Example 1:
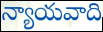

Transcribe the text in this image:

న్యాయవాది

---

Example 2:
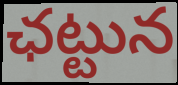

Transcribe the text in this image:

ఛట్టున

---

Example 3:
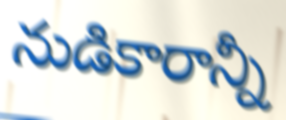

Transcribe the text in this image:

నుడికారాన్నీ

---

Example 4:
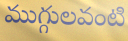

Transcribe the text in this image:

ముగ్గులవంటి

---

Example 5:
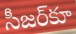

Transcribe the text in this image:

సీజర్‌కూ